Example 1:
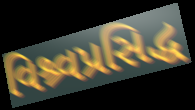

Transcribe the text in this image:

વિશ્ર્વપ્રસિદ્ધ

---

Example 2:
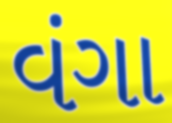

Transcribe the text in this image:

વંગા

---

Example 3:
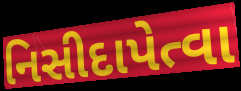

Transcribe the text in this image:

નિસીદાપેત્વા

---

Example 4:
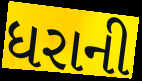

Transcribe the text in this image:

ધરાની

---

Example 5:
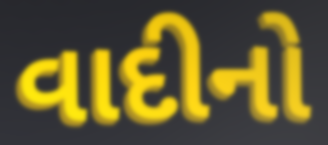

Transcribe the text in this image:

વાદીનો